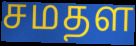
சமதள